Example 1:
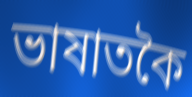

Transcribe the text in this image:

ভাষাতকৈ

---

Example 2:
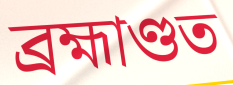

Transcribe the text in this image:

ব্ৰহ্মাণ্ডত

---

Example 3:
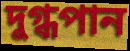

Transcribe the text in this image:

দুগ্ধপান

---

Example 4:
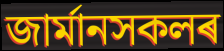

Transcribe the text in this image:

জাৰ্মানসকলৰ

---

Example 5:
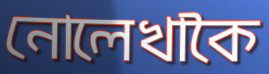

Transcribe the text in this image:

নোলেখাকৈ